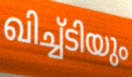
ഖിച്ച്ടിയും